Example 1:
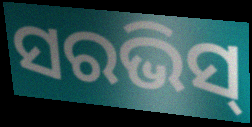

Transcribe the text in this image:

ସରଭିସ୍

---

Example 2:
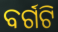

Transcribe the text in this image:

ବର୍ଗଟି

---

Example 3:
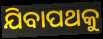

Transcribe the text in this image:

ଯିବାପଥକୁ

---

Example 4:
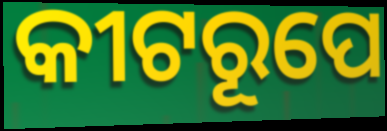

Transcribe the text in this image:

କୀଟରୂପେ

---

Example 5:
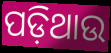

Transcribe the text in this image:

ପଡ଼ିଥାଉ